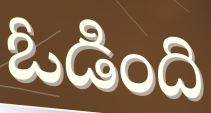
ఓడింది